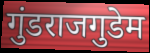
गुंडराजगुडेम